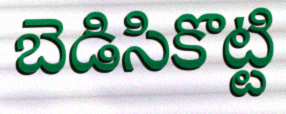
బెడిసికొట్టి